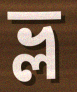
ভ্ল